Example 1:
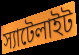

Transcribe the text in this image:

স্যাটেলাইট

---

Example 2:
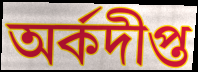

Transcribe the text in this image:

অর্কদীপ্ত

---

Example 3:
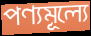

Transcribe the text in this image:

পণ্যমূল্যে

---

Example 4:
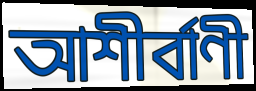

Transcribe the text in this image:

আশীর্বাণী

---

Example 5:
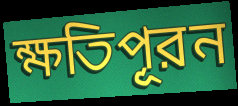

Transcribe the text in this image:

ক্ষতিপূরন